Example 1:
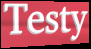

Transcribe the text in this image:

Testy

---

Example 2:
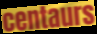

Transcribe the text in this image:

centaurs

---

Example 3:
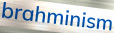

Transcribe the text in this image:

brahminism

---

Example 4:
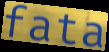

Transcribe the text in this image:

fata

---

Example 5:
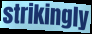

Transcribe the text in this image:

strikingly